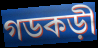
গডকড়ী